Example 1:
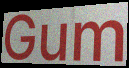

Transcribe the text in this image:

Gum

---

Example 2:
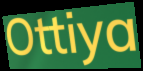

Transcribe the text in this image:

Ottiya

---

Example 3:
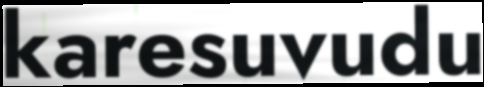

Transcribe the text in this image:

karesuvudu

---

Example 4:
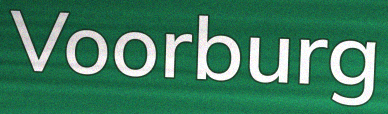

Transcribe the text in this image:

Voorburg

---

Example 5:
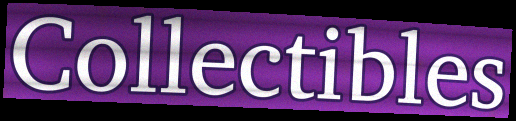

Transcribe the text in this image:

Collectibles